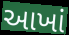
આખાં